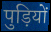
पुड़ियों